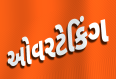
ઓવરટેકિંગ